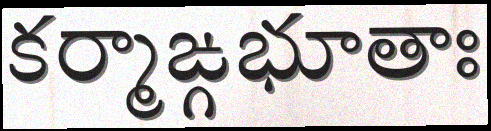
కర్మాఙ్గభూతాః